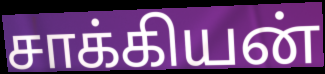
சாக்கியன்